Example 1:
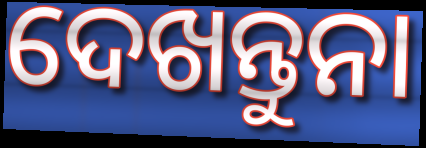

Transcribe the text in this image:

ଦେଖନ୍ତୁନା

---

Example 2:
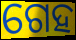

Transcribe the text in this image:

ଗେହ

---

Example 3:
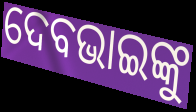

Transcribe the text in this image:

ଦେବଭାଇଙ୍କୁ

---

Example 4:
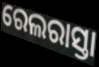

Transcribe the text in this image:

ରେଲରାସ୍ତା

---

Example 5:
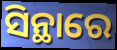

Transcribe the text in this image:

ସିନ୍ଥାରେ